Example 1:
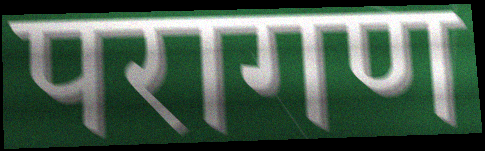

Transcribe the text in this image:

परागण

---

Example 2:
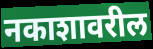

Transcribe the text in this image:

नकाशावरील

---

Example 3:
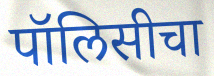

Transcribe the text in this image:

पॉलिसीचा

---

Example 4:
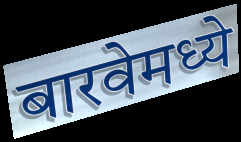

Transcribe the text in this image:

बारवेमध्ये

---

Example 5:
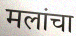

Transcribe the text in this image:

मलांचा